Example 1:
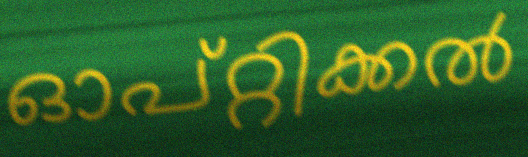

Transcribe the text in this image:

ഓപ്റ്റിക്കൽ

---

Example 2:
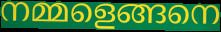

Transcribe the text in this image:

നമ്മളെങ്ങനെ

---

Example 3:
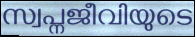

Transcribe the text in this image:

സ്വപ്നജീവിയുടെ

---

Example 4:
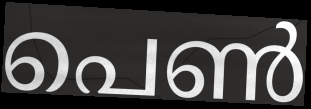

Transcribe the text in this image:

പെൺ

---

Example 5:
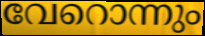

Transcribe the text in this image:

വേറൊന്നും